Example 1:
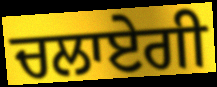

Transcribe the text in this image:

ਚਲਾਏਗੀ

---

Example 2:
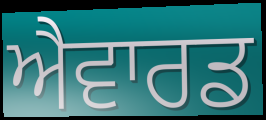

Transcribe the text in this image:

ਐਵਾਰਡ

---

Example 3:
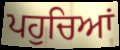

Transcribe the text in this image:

ਪਹੁਚਿਆਂ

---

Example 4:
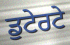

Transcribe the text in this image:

ਡੁਟੇਰਟੇ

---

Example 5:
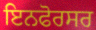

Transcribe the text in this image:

ਇਨਫੋਰਸਰ